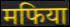
मफिया